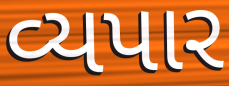
વ્યપાર